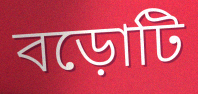
বড়োটি